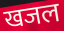
खजल